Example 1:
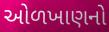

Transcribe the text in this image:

ઓળખાણનો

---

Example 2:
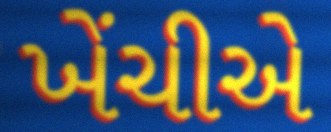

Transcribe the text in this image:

ખેંચીએ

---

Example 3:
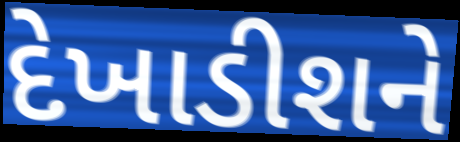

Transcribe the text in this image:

દેખાડીશને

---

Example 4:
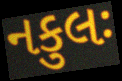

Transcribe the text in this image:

નકુલઃ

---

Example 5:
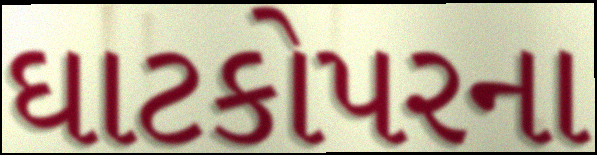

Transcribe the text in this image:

ઘાટકોપરના